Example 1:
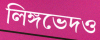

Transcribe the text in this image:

লিঙ্গভেদও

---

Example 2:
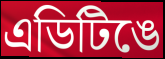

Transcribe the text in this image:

এডিটিঙে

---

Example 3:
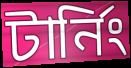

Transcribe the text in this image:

টার্নিং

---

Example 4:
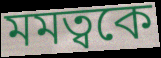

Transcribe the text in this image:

মমত্বকে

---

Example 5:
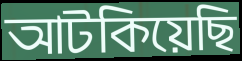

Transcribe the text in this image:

আটকিয়েছি